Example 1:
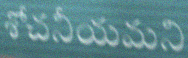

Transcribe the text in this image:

శోచనీయమని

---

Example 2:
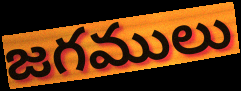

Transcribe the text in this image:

జగములు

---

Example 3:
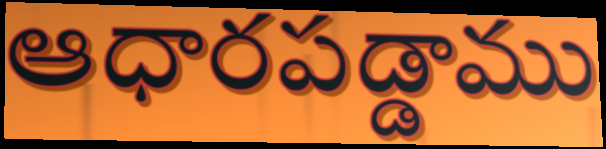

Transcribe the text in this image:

ఆధారపడ్డాము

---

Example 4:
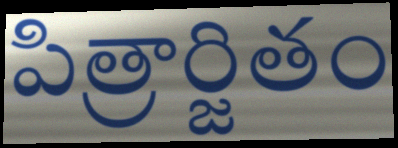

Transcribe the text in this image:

పిత్రార్జితం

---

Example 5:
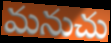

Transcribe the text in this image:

మనుచు